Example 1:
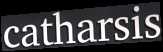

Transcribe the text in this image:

catharsis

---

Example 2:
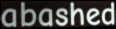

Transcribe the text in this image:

abashed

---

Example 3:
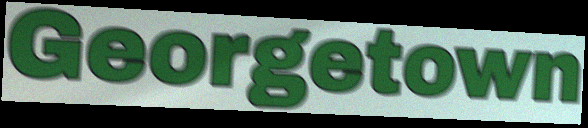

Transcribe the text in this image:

Georgetown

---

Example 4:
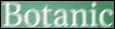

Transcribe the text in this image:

Botanic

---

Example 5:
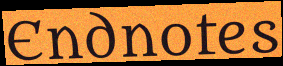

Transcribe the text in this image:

Endnotes